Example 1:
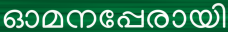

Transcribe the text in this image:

ഓമനപ്പേരായി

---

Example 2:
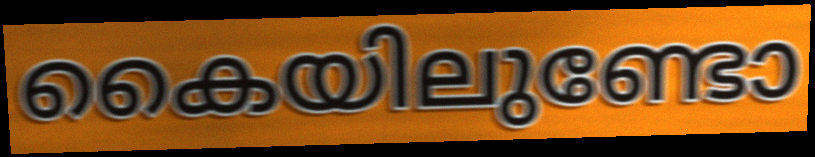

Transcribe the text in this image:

കൈയിലുണ്ടോ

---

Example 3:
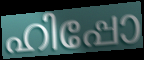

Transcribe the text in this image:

ഹിപ്പോ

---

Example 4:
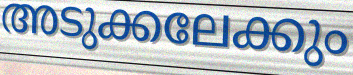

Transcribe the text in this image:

അടുക്കലേക്കും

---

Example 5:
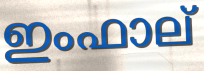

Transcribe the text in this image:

ഇംഫാല്